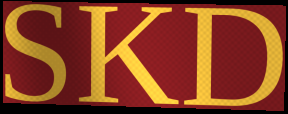
SKD